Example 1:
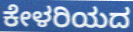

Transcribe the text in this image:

ಕೇಳರಿಯದ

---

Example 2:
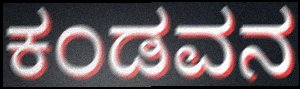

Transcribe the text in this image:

ಕಂಡವನ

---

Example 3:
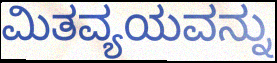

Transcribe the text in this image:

ಮಿತವ್ಯಯವನ್ನು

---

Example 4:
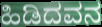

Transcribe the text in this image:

ಹಿಡಿದವನ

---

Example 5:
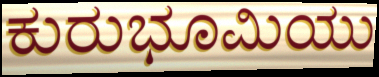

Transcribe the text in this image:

ಕುರುಭೂಮಿಯು